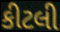
કીટલી